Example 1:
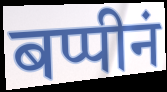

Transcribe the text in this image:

बप्पीनं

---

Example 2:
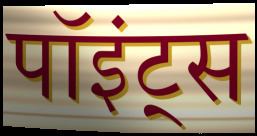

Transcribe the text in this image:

पॉइंट्स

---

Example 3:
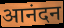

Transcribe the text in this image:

आनंदन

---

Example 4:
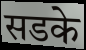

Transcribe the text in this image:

सडके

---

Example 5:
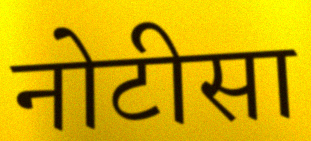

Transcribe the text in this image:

नोटीसा